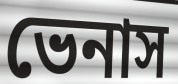
ভেনাস